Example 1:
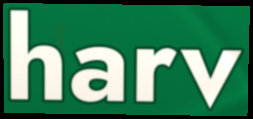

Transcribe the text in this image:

harv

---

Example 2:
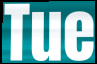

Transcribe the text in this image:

Tue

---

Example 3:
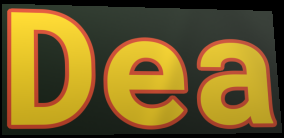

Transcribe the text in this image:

Dea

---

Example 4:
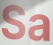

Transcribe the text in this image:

Sa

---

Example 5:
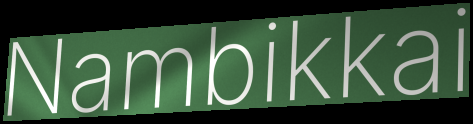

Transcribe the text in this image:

Nambikkai